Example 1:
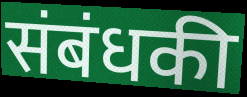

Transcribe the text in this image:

संबंधकी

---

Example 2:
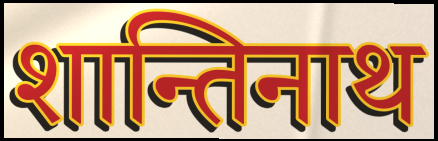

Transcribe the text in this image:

शान्तिनाथ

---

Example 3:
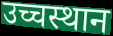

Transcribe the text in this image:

उच्चस्थान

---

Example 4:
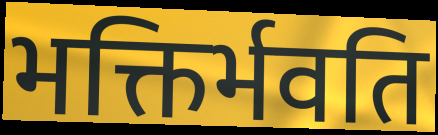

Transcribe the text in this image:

भक्तिर्भवति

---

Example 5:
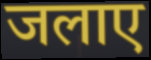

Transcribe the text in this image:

जलाए